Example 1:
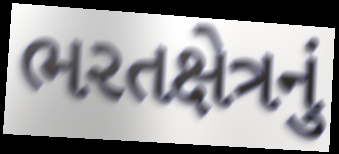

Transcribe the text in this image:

ભરતક્ષેત્રનું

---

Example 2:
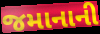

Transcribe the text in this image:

જમાનાની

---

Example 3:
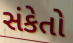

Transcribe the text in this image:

સંકેતો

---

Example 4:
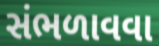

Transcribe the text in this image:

સંભળાવવા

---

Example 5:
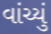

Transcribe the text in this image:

વાંચ્યું